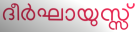
ദീർഘായുസ്സ്